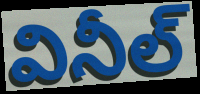
వినీల్